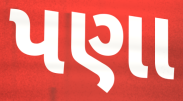
પણા